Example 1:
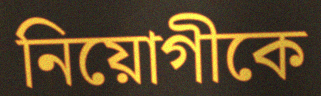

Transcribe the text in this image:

নিয়োগীকে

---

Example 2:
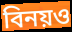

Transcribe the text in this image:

বিনয়ও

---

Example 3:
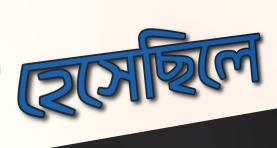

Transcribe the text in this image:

হেসেছিলে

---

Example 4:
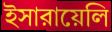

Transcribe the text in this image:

ইসারায়েলি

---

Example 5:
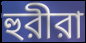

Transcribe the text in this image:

হুরীরা